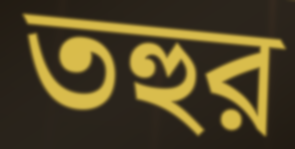
তহুর